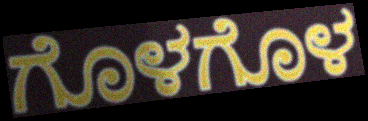
ಗೊಳಗೊಳ